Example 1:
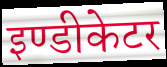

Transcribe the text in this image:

इण्डीकेटर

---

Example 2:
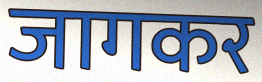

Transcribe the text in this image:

जागकर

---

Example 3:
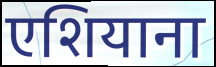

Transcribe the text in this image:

एशियाना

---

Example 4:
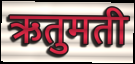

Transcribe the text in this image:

ऋतुमती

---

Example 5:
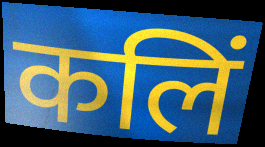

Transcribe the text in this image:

कलिं